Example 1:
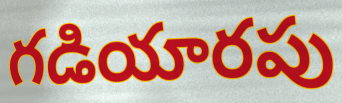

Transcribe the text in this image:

గడియారపు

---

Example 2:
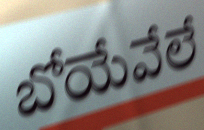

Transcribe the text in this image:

బోయేవేలే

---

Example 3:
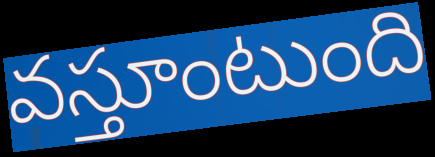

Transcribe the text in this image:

వస్తూంటుంది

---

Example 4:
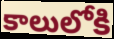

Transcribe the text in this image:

కాలులోకి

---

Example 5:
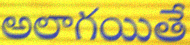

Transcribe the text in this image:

అలాగయితే